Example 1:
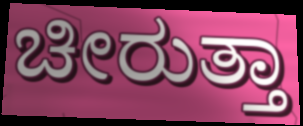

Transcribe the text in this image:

ಚೀರುತ್ತಾ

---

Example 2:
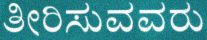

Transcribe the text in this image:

ತೀರಿಸುವವರು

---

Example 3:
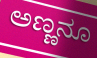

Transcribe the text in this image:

ಅಣ್ಣನೂ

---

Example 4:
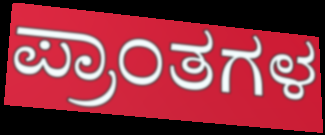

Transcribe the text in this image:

ಪ್ರಾಂತಗಳ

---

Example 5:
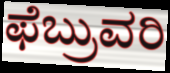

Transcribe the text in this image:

ಫೆಬ್ರುವರಿ